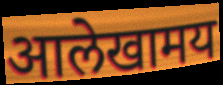
आलेखामय